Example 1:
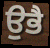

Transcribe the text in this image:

ਉਭੈ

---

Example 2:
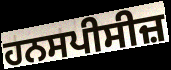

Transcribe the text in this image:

ਹਨਸਪੀਸੀਜ਼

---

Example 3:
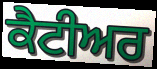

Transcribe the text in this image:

ਕੈਟੀਅਰ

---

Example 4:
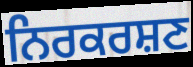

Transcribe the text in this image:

ਨਿਰਕਰਸ਼ਣ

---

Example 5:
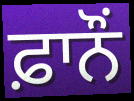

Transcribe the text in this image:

ਫ਼ਾਨੌਂ